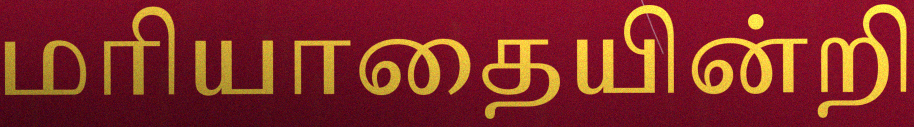
மரியாதையின்றி